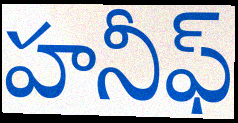
హనీఫ్